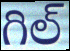
గిల్